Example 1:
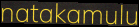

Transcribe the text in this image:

natakamulu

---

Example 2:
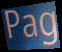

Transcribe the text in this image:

Pag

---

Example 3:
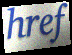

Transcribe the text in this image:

href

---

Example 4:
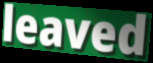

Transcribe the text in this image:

leaved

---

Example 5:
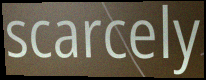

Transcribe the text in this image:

scarcely